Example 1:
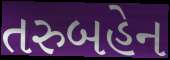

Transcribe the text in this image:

તરુબહેન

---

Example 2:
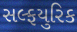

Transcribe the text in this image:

સલ્ફયુરિક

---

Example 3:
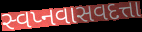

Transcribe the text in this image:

સ્વપ્નવાસવદત્તા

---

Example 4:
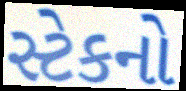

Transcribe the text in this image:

સ્ટેકનો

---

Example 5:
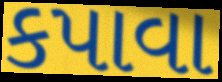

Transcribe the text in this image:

કપાવા